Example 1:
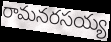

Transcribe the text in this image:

రామనరసయ్య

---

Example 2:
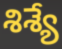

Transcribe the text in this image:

శిశ్యే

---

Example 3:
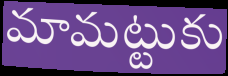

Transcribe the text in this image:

మామట్టుకు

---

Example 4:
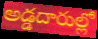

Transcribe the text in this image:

అడ్డదారుల్లో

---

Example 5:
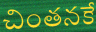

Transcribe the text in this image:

చింతనకే